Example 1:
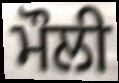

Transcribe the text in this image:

ਮੌਲੀ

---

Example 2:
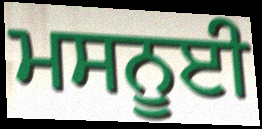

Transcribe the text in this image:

ਮਸਨੂਈ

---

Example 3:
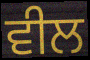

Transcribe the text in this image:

ਵੀਲ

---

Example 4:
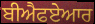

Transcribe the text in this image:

ਬੀਐਫਏਆਰ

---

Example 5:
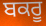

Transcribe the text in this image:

ਬਕਰੂ